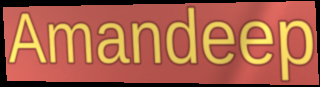
Amandeep